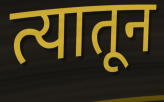
त्यातून